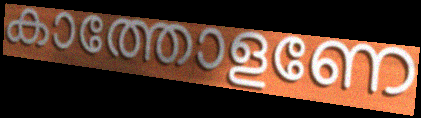
കാത്തോളണേ